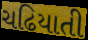
ચઢિયાતી